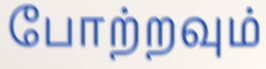
போற்றவும்